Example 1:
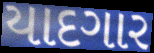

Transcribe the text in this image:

યાદગાર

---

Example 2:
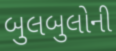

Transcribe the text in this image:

બુલબુલોની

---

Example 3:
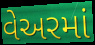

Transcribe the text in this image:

વેઅરમાં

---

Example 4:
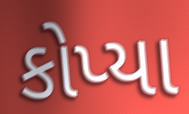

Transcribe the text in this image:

કોપ્યા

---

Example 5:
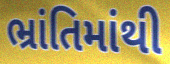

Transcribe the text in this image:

ભ્રાંતિમાંથી